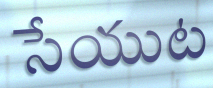
సేయుట